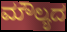
ಮೌಲ್ಯದ